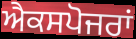
ਐਕਸਪੋਜਰਾਂ